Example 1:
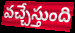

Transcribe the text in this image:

వచ్చేస్తుంది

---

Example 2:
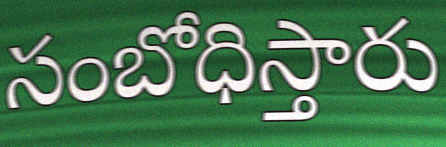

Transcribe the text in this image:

సంబోధిస్తారు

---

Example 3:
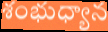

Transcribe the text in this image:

శంభుధ్యాన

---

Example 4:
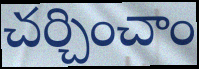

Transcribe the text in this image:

చర్చించాం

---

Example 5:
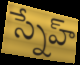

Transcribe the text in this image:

స్నేహ్